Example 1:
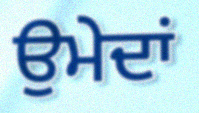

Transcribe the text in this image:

ਉਮੇਦਾਂ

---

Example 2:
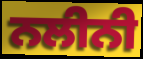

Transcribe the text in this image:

ਨਲੀਨੀ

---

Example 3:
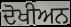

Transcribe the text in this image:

ਦੋਖੀਅਨ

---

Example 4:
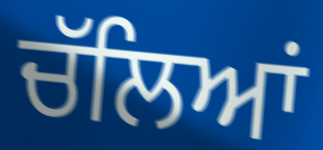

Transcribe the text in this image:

ਚੱਲਿਆਂ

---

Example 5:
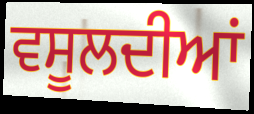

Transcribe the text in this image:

ਵਸੂਲਦੀਆਂ